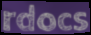
rdocs